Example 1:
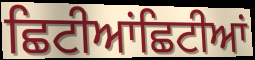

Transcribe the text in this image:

ਛਿਟੀਆਂਛਿਟੀਆਂ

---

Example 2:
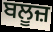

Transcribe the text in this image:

ਬਲੂਜ਼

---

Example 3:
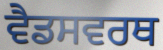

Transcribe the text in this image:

ਵੈਡਸਵਰਥ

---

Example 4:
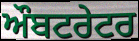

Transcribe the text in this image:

ਔਬਟਰੇਟਰ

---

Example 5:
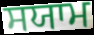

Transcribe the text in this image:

ਸਯਾਮ